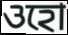
ওহো